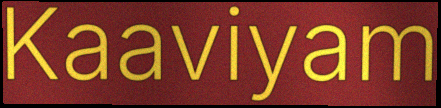
Kaaviyam